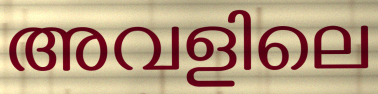
അവളിലെ